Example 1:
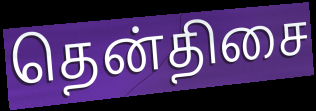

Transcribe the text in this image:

தென்திசை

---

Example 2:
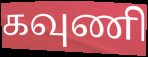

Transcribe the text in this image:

கவுணி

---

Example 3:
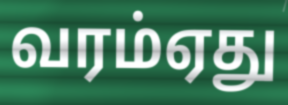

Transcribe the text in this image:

வரம்ஏது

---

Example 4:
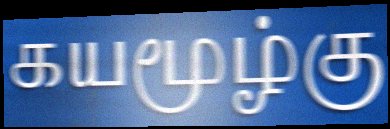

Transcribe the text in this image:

கயமூழ்கு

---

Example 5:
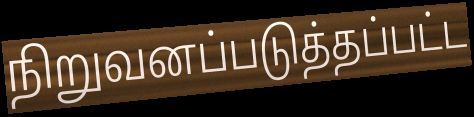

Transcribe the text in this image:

நிறுவனப்படுத்தப்பட்ட